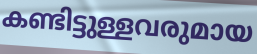
കണ്ടിട്ടുള്ളവരുമായ